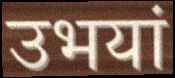
उभयां